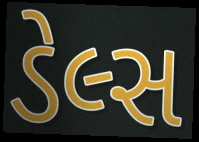
ડેલ્સ